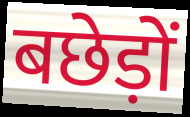
बछेड़ों